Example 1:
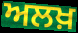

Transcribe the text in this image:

ਅਲਖ਼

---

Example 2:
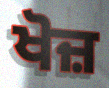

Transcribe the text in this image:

ਖੋਜ਼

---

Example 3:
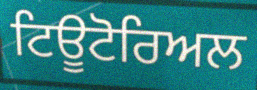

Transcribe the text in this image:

ਟਿਊਟੋਰਿਅਲ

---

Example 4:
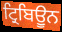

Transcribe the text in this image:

ਟ੍ਰਿਬਿਉੂਨ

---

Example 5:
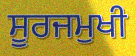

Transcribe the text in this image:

ਸੂਰਜਮੁਖੀ